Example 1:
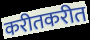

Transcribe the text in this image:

करीतकरीत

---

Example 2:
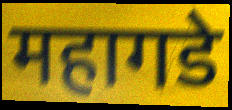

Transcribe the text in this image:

महागडे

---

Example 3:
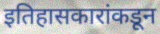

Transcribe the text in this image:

इतिहासकारांकडून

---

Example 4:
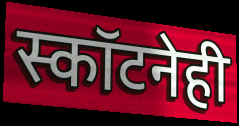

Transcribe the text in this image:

स्कॉटनेही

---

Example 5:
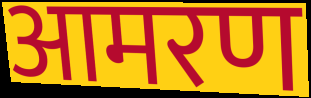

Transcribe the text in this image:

आमरण